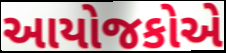
આયોજકોએ